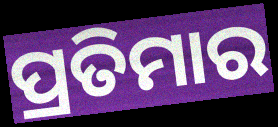
ପ୍ରତିମାର